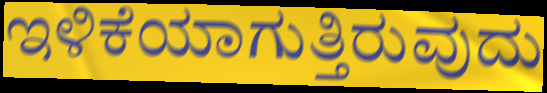
ಇಳಿಕೆಯಾಗುತ್ತಿರುವುದು